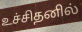
உச்சிதனில்